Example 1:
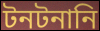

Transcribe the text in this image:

টনটনানি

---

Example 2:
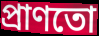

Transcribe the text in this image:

প্রাণতো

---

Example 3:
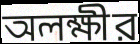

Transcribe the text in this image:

অলক্ষীর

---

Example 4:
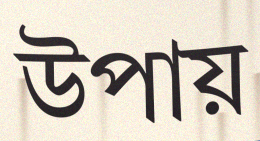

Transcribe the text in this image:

উপায়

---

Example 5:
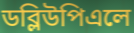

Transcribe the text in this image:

ডব্লিউপিএলে